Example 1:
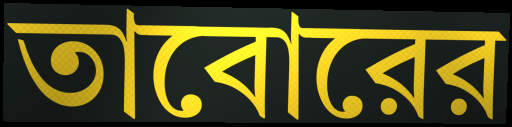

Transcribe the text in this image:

তাবোরের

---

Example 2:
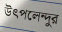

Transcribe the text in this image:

উৎপলেন্দুর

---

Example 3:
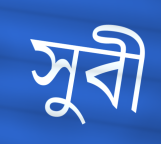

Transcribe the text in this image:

সুবী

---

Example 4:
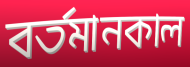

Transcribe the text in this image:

বর্তমানকাল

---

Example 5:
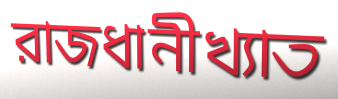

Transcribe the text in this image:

রাজধানীখ্যাত